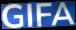
GIFA